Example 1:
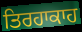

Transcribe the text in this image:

ਤਿਰਹਾਕਾਹ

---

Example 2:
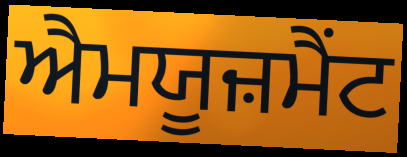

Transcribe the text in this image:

ਐਮਯੂਜ਼ਮੈਂਟ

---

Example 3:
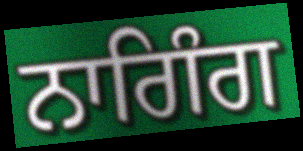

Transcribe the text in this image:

ਨਾਗਿੰਗ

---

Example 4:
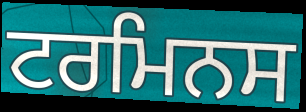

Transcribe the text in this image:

ਟਰਮਿਨਸ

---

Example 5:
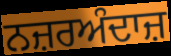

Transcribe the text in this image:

ਨਜ਼ਰਅੰਦਾਜ਼